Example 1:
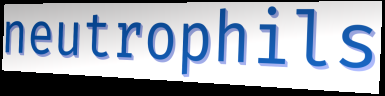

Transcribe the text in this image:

neutrophils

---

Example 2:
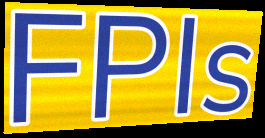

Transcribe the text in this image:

FPIs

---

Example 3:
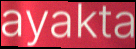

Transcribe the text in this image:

ayakta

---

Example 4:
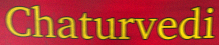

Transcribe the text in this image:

Chaturvedi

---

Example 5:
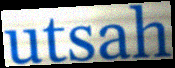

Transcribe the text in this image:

utsah